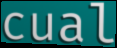
cual